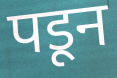
पडून